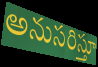
అనుసరిస్తూ